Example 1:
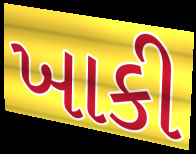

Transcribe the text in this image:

ખાકી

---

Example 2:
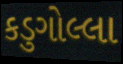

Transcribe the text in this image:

કડુગોલ્લા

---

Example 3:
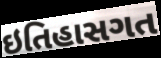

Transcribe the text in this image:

ઇતિહાસગત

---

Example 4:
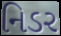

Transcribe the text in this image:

નિડર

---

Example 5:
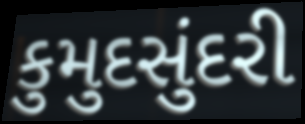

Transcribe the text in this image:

કુમુદસુંદરી